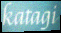
katagi